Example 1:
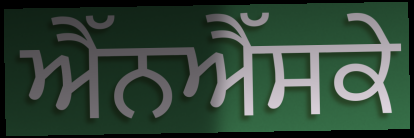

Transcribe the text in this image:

ਐੱਨਐੱਸਕੇ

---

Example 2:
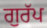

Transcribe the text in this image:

ਗੁਰੱਪ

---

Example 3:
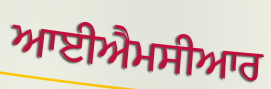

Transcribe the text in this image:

ਆਈਐਮਸੀਆਰ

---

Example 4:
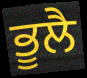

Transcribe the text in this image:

ਭੂਲੈ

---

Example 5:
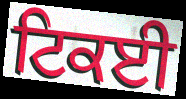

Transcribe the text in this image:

ਟਿਕਈ